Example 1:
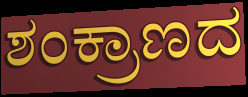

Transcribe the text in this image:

ಶಂಕ್ರಾಣದ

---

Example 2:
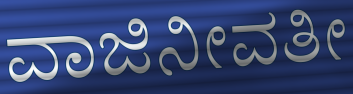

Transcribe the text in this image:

ವಾಜಿನೀವತೀ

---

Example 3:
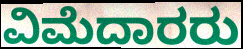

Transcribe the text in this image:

ವಿಮೆದಾರರು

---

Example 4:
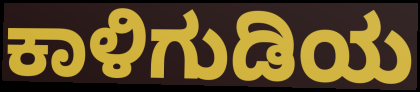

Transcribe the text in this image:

ಕಾಳಿಗುಡಿಯ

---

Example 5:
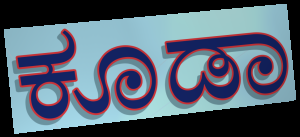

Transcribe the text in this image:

ಕೂಡಾ